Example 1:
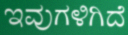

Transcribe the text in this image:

ಇವುಗಳಿಗಿದೆ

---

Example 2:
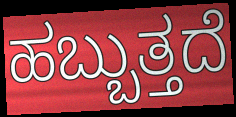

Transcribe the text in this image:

ಹಬ್ಬುತ್ತದೆ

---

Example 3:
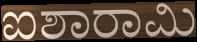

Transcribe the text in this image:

ಐಶಾರಾಮಿ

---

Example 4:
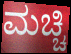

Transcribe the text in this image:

ಮಚ್ಚಿ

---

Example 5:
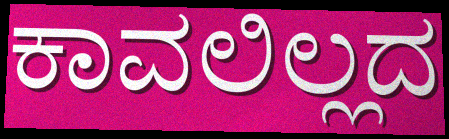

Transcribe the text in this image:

ಕಾವಲಿಲ್ಲದ